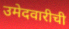
उमेदवारीची